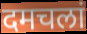
दमचलां